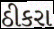
ઠીકરા